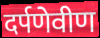
दर्पणेवीण